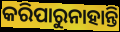
କରିପାରୁନାହାନ୍ତି